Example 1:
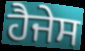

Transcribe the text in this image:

ਹੈਜੇਸ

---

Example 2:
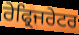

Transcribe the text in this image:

ਰੇਫ੍ਰਿਜਰੇਟਰ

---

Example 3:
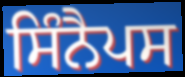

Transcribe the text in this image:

ਸਿੰਨੈਪਸ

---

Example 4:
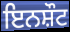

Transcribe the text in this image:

ਇਨਸ਼ੌਟ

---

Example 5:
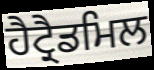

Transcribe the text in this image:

ਹੈਟ੍ਰੈਡਮਿਲ